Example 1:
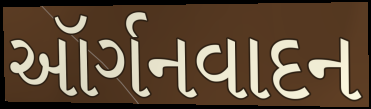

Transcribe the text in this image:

ઑર્ગનવાદન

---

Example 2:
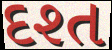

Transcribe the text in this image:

દશ્ત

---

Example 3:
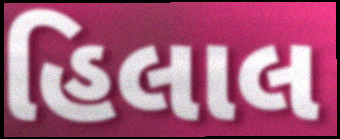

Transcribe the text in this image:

હિલાલ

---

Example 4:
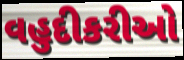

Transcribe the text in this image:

વહુદીકરીઓ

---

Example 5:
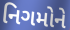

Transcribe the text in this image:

નિગમોને